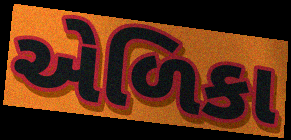
એળિકા